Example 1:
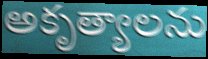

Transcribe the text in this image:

అకృత్యాలను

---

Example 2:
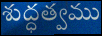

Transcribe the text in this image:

శుద్ధత్వము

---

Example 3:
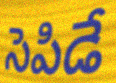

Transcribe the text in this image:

సెపిడే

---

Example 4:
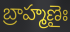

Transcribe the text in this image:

బ్రాహ్మణైః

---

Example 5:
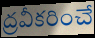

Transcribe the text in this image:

ద్రవీకరించే